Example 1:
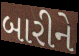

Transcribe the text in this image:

બારીને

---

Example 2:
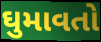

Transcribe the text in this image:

ઘુમાવતો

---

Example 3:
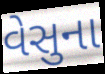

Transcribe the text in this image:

વેસુના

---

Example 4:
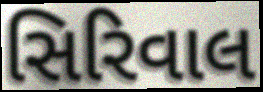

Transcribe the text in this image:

સિરિવાલ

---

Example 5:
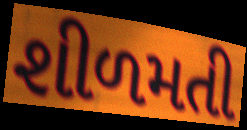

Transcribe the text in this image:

શીળમતી